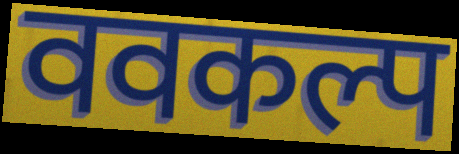
ववकल्प